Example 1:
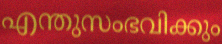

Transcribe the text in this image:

എന്തുസംഭവിക്കും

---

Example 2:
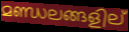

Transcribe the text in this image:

മണ്ഡലങ്ങളില്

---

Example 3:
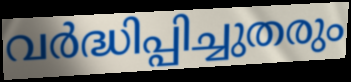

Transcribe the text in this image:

വർദ്ധിപ്പിച്ചുതരും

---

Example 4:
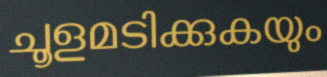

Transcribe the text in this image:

ചൂളമടിക്കുകയും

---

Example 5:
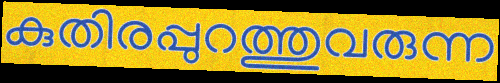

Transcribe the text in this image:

കുതിരപ്പുറത്തുവരുന്ന